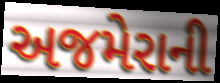
અજમેરાની